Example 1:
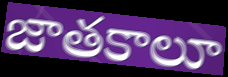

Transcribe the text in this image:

జాతకాలూ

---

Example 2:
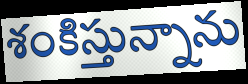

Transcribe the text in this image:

శంకిస్తున్నాను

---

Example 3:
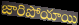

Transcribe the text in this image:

జారిపోయాయి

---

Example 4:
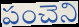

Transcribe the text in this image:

పంచెని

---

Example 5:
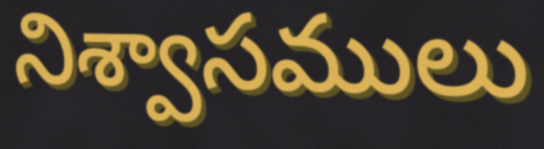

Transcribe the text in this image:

నిశ్వాసములు